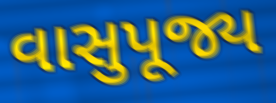
વાસુપૂજ્ય